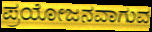
ಪ್ರಯೋಜನವಾಗುವ